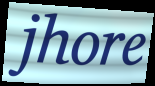
jhore